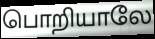
பொறியாலே